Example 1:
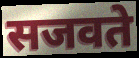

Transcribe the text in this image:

सजवते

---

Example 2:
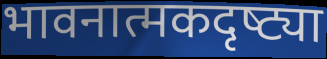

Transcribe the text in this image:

भावनात्मकदृष्ट्या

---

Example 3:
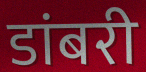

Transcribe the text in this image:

डांबरी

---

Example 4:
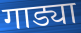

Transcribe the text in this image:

गाड्या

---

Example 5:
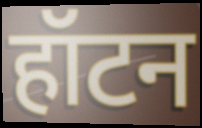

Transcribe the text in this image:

हॉटन